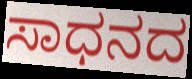
ಸಾಧನದ